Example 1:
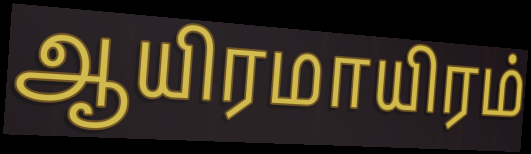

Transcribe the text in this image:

ஆயிரமாயிரம்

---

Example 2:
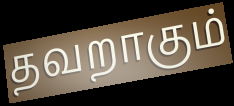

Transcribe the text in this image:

தவறாகும்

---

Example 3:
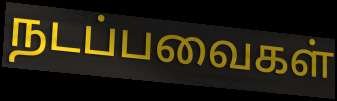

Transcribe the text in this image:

நடப்பவைகள்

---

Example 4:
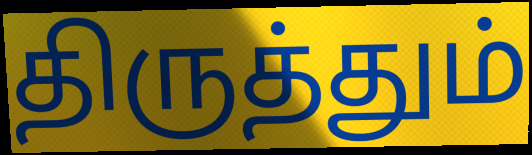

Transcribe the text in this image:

திருத்தும்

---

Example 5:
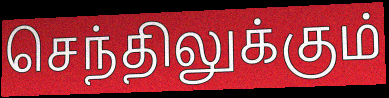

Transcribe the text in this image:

செந்திலுக்கும்